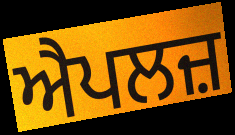
ਐਪਲਜ਼